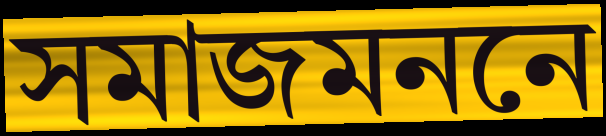
সমাজমননে